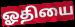
ஓதியை